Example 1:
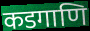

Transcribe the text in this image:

कडगाणि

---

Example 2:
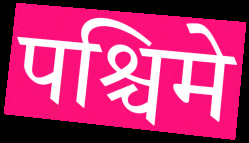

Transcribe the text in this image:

पश्चिमे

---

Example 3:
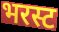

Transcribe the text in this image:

भरस्ट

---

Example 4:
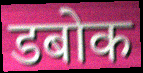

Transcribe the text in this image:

डबोक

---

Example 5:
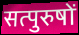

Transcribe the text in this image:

सत्पुरुषों